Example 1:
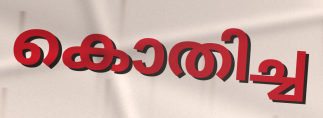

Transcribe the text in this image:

കൊതിച്ച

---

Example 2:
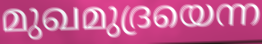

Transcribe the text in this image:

മുഖമുദ്രയെന്ന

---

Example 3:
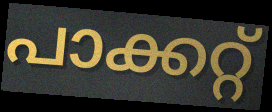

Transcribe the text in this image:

പാക്കറ്റ്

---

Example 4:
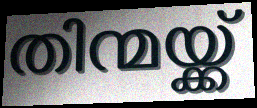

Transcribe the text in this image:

തിന്മയ്ക്ക്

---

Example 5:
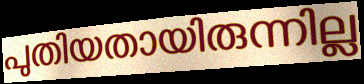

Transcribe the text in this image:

പുതിയതായിരുന്നില്ല